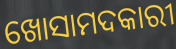
ଖୋସାମଦକାରୀ